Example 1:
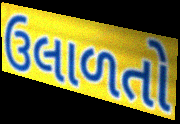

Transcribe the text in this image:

ઉલાળતો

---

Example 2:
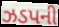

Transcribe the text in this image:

ઝડપની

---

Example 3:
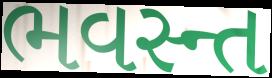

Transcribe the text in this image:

ભવસ્ન્ત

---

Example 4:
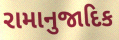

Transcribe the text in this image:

રામાનુજાદિક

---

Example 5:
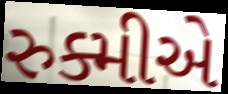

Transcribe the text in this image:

રુક્મીએ